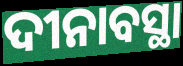
ଦୀନାବସ୍ଥା